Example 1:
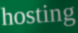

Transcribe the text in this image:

hosting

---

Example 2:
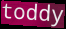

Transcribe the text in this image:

toddy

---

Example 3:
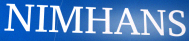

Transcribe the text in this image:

NIMHANS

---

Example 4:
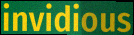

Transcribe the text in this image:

invidious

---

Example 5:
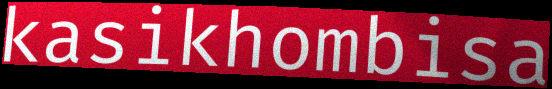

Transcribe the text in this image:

kasikhombisa